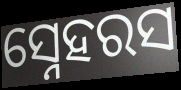
ସ୍ନେହରସ